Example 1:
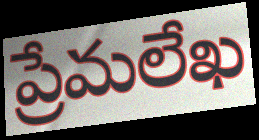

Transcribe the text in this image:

ప్రేమలేఖ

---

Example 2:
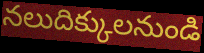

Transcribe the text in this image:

నలుదిక్కులనుండి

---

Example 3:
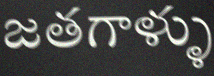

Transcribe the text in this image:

జతగాళ్ళు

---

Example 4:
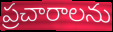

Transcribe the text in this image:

ప్రచారాలను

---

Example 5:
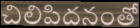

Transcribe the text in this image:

చిలిపిదనంతో